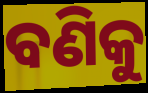
ବଣିକୁ